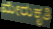
ಮೇರುಕೃತಿ